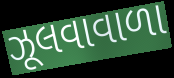
ઝૂલવાવાળા